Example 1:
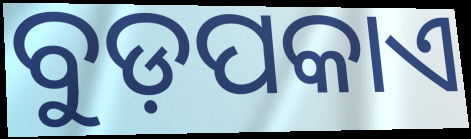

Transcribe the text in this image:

ବୁଡ଼ପକାଏ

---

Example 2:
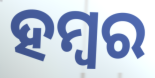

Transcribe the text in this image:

ହମ୍ବର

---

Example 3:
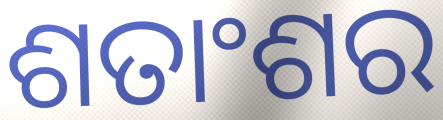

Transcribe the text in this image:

ଶତାଂଶର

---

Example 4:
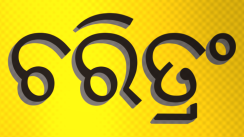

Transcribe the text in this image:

ଚରିତ୍ରଂ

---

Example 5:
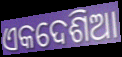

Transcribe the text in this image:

ଏକଦେଶିଆ